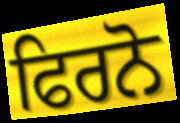
ਫਿਰਨੋ